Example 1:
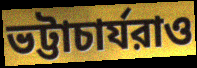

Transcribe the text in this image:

ভট্টাচার্যরাও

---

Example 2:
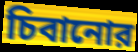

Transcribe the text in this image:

চিবানোর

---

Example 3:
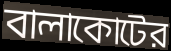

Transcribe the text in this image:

বালাকোটের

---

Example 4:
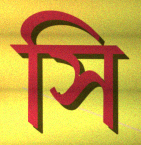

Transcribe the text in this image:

সি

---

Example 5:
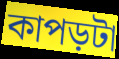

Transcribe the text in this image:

কাপড়টা